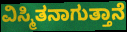
ವಿಸ್ಮಿತನಾಗುತ್ತಾನೆ